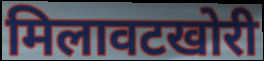
मिलावटखोरी